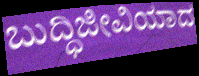
ಬುದ್ಧಿಜೀವಿಯಾದ